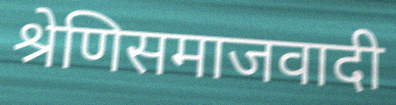
श्रेणिसमाजवादी